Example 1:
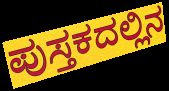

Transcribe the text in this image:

ಪುಸ್ತಕದಲ್ಲಿನ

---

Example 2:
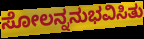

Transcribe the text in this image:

ಸೋಲನ್ನನುಭವಿಸಿತು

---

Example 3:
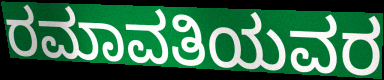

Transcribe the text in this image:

ರಮಾವತಿಯವರ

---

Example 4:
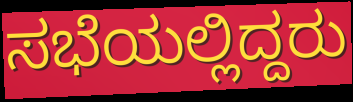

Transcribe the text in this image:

ಸಭೆಯಲ್ಲಿದ್ದರು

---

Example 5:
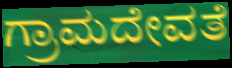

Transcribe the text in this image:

ಗ್ರಾಮದೇವತೆ